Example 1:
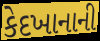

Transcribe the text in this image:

કેદખાનાની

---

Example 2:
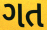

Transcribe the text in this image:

ગત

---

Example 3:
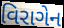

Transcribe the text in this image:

વિરાગેન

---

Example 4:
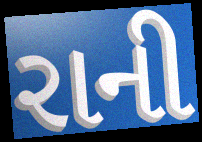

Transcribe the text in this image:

રાની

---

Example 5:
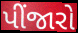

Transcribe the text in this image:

પીંજારો